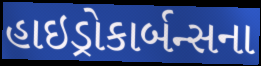
હાઇડ્રોકાર્બન્સના